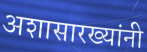
अशासारख्यांनी